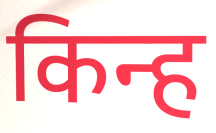
किन्ह